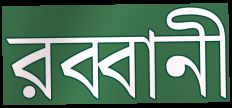
রব্বানী